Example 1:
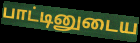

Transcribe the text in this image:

பாட்டினுடைய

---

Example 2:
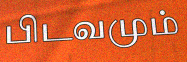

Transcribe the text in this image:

பிடவமும்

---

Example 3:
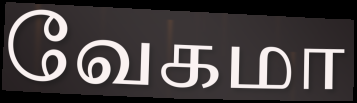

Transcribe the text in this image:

வேகமா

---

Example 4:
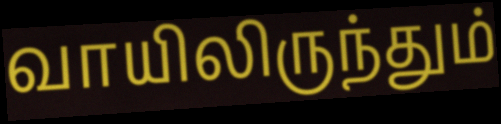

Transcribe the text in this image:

வாயிலிருந்தும்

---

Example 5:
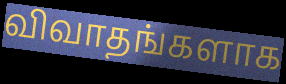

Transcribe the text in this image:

விவாதங்களாக